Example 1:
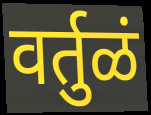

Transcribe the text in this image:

वर्तुळं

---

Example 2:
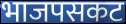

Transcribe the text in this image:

भाजपसकट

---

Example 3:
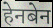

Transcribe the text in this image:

हेनबेन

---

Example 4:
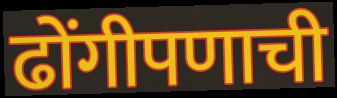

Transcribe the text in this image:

ढोंगीपणाची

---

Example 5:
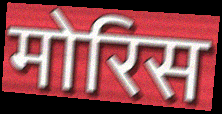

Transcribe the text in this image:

मोरिस